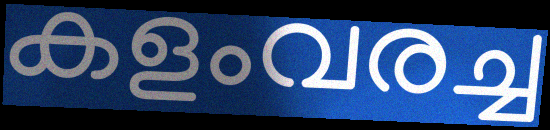
കളംവരച്ച